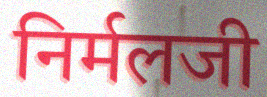
निर्मलजी